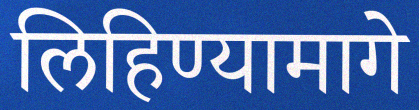
लिहिण्यामागे